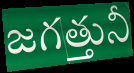
జగత్తునీ